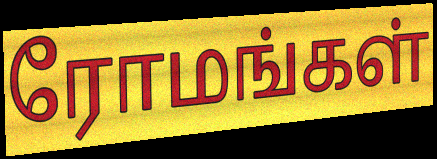
ரோமங்கள்